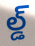
ల్డ్